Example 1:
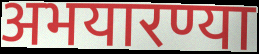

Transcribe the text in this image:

अभयारण्या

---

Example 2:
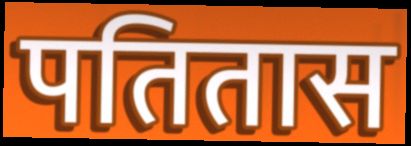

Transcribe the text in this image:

पतितास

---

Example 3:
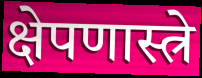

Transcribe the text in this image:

क्षेपणास्त्रे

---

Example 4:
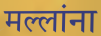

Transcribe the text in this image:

मल्लांना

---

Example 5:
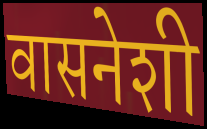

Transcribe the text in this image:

वासनेशी